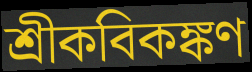
শ্রীকবিকঙ্কণ